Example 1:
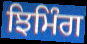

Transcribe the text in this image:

ਝਿਮਿੰਗ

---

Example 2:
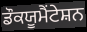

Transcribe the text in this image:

ਡੌਕਯੂਮੈਂਟੇਸ਼ਨ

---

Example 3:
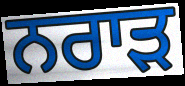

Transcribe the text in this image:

ਨਰਾੜ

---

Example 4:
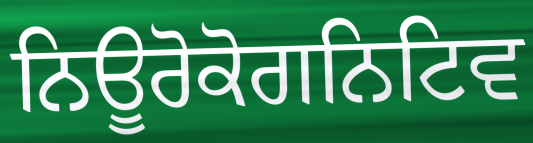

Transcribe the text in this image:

ਨਿਊਰੋਕੋਗਨਿਟਿਵ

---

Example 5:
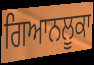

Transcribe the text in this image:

ਗਿਆਨਲੂਕਾ